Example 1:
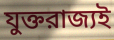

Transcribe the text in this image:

যুক্তরাজ্যই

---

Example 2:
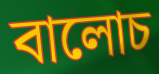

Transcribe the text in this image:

বালোচ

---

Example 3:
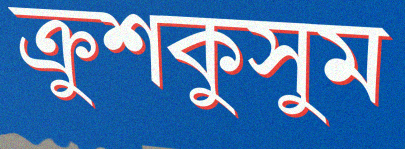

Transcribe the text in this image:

ক্রুশকুসুম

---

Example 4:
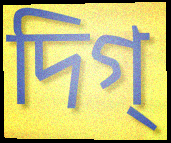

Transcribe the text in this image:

দিগ্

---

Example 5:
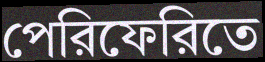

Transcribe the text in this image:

পেরিফেরিতে